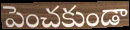
పెంచకుండా